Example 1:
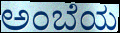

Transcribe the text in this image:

ಅಂಬೆಯ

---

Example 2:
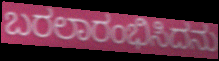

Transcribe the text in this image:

ಬರಲಾರಂಭಿಸಿದನು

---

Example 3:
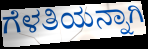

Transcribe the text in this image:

ಗೆಳತಿಯನ್ನಾಗಿ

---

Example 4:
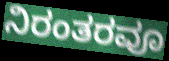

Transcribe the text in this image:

ನಿರಂತರವೂ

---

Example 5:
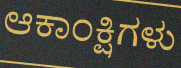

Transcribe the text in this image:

ಆಕಾಂಕ್ಷಿಗಳು